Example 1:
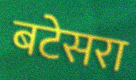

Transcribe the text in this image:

बटेसरा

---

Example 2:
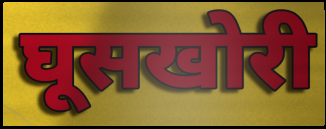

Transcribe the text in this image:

घूसखोरी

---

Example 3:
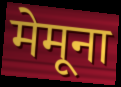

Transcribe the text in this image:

मेमूना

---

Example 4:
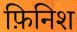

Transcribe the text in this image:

फ़िनिश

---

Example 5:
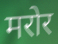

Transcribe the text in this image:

मरोर